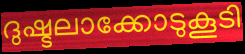
ദുഷ്ടലാക്കോടുകൂടി